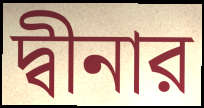
দ্বীনার